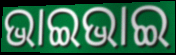
ଭାଇଭାଇ